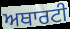
ਅਥਾਰਟੀ